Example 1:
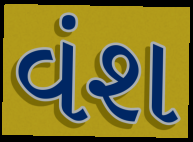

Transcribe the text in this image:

વંશ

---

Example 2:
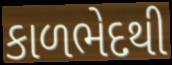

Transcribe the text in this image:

કાળભેદથી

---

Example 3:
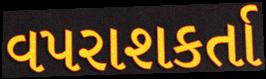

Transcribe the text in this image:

વપરાશકર્તા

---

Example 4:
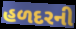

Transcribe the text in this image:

હળદરની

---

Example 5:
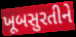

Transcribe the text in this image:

ખૂબસુરતીને